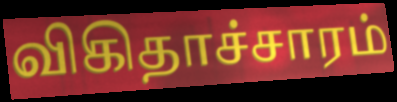
விகிதாச்சாரம்